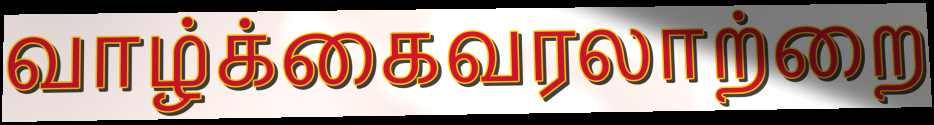
வாழ்க்கைவரலாற்றை